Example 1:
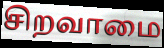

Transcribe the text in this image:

சிறவாமை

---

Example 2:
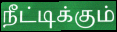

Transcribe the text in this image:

நீட்டிக்கும்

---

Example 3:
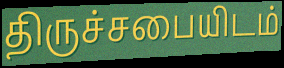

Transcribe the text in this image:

திருச்சபையிடம்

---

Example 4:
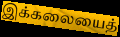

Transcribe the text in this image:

இக்கலையைத்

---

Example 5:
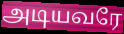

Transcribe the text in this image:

அடியவரே